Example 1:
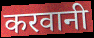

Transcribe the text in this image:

करवानी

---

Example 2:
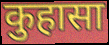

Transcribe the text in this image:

कुहासा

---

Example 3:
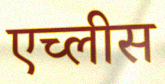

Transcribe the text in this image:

एच्लीस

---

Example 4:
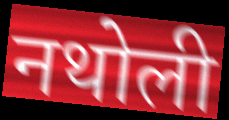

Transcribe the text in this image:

नथोली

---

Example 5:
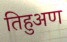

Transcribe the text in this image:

तिहुअण